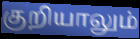
குறியாலும்